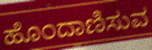
ಹೊಂದಾಣಿಸುವ